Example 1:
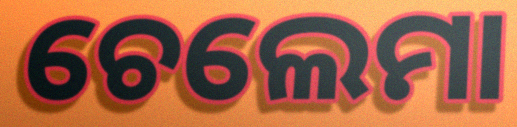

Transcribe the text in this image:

ଚେଲେମା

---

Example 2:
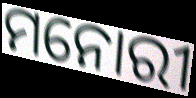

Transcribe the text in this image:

ମନୋରୀ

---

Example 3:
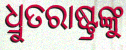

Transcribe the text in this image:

ଧ୍ରୁତରାଷ୍ଟ୍ରଙ୍କୁ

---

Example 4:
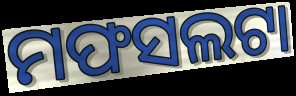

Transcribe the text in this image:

ମଫସଲଟା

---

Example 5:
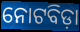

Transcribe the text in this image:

ନୋଟବିଡ଼ା